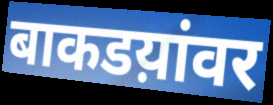
बाकडय़ांवर